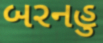
બરનહુ